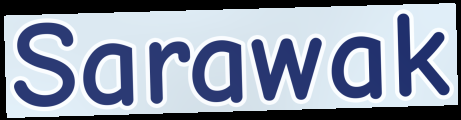
Sarawak